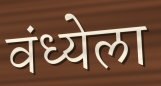
वंध्येला